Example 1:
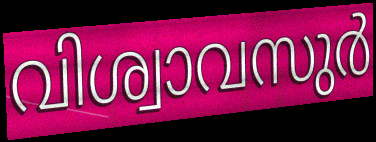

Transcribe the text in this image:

വിശ്വാവസുർ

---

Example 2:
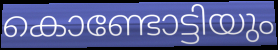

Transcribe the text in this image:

കൊണ്ടോട്ടിയും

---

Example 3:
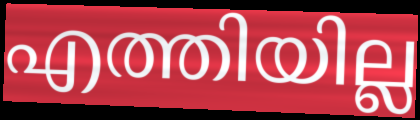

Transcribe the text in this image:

എത്തിയില്ല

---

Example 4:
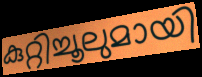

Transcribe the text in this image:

കുറ്റിച്ചൂലുമായി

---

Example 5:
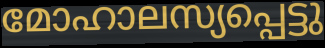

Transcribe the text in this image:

മോഹാലസ്യപ്പെട്ടു